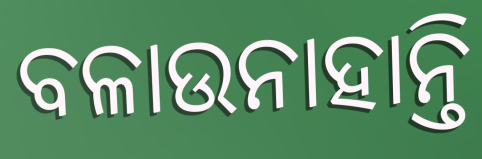
ବଳାଉନାହାନ୍ତି